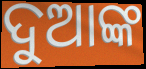
ଦୁଆଙ୍କ